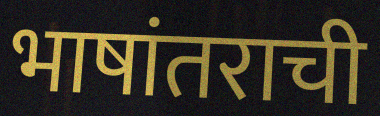
भाषांतराची